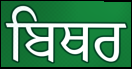
ਬਿਥਰ